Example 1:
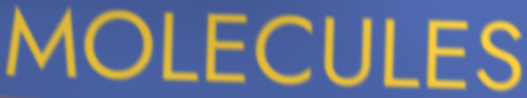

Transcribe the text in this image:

MOLECULES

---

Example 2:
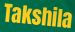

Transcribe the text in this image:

Takshila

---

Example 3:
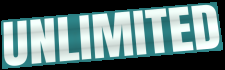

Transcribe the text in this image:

UNLIMITED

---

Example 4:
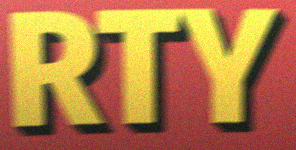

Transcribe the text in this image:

RTY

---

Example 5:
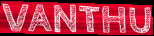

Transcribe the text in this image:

VANTHU